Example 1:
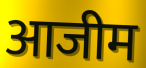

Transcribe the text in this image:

आजीम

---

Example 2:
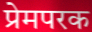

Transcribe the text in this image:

प्रेमपरक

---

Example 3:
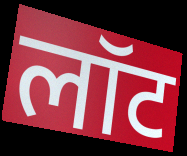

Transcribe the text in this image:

लॉट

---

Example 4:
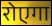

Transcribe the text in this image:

रोएगा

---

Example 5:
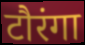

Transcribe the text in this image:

टौरंगा